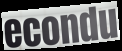
econdu